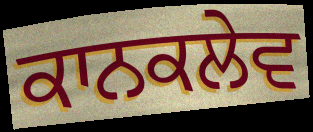
ਕਾਨਕਲੇਵ